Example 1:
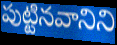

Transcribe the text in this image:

పుట్టినవానిని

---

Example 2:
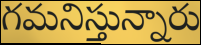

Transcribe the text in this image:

గమనిస్తున్నారు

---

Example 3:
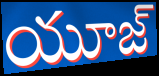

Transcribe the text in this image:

యూజ్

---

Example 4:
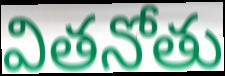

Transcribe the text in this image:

వితనోతు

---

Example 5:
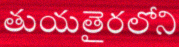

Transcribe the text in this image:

తుయతైరలోని